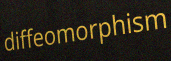
diffeomorphism